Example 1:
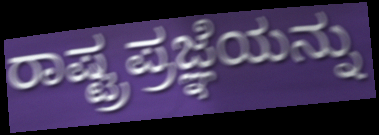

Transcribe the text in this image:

ರಾಷ್ಟ್ರಪ್ರಜ್ಞೆಯನ್ನು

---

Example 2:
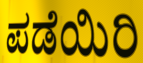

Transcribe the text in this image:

ಪಡೆಯಿರಿ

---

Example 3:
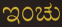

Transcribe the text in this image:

ಇಂಚು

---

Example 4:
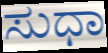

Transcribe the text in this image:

ಸುಧಾ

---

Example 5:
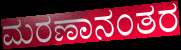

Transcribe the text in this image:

ಮರಣಾನಂತರ